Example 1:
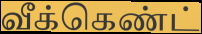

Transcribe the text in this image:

வீக்கெண்ட்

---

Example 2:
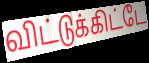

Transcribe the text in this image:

விட்டுக்கிட்டே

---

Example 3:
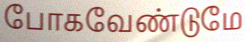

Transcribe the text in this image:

போகவேண்டுமே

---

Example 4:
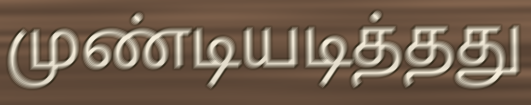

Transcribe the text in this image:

முண்டியடித்தது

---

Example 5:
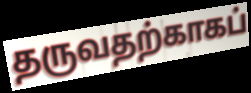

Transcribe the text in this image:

தருவதற்காகப்